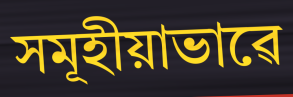
সমূহীয়াভাৱে